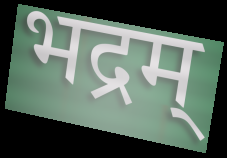
भद्रम्